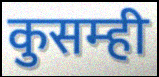
कुसम्ही